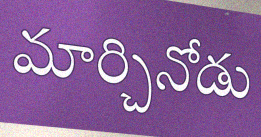
మార్చినోడు